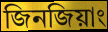
জিনজিয়াং